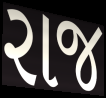
રાજ